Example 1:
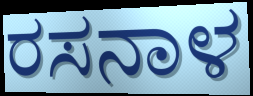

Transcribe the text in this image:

ರಸನಾಳ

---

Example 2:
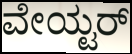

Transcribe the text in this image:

ವೇಯ್ಟರ್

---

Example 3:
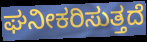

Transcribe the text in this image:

ಘನೀಕರಿಸುತ್ತದೆ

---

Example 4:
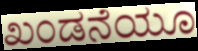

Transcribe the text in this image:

ಖಂಡನೆಯೂ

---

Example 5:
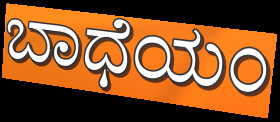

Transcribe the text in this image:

ಬಾಧೆಯಂ